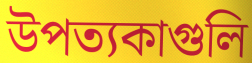
উপত্যকাগুলি